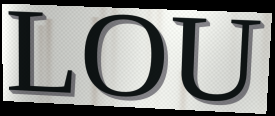
LOU